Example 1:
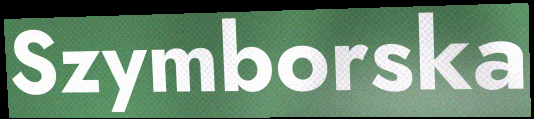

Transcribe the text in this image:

Szymborska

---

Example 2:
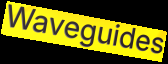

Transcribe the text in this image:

Waveguides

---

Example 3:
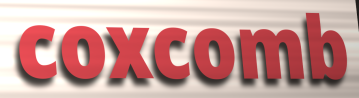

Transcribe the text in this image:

coxcomb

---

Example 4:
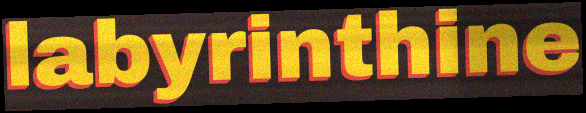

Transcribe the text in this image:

labyrinthine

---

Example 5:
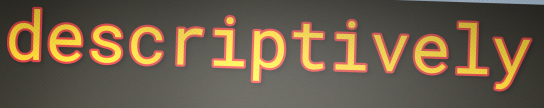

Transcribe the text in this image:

descriptively